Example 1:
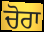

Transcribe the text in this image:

ਚੋਰਾ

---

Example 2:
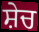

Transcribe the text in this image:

ਸ਼ੇਚ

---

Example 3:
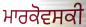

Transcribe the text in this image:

ਮਾਰਕੋਵਸਕੀ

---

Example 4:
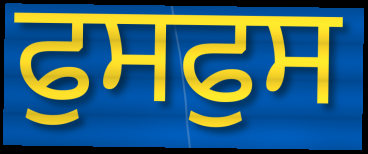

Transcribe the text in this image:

ਫੁਸਫੁਸ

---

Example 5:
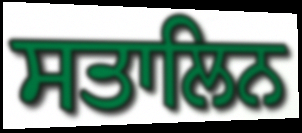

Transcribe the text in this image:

ਸਤਾਲਿਨ